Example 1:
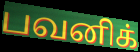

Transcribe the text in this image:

பவனிக்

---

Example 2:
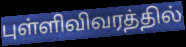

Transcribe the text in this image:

புள்ளிவிவரத்தில்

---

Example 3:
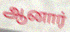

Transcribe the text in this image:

ஆனார்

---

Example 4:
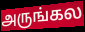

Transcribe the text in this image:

அருங்கல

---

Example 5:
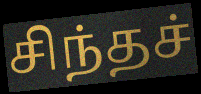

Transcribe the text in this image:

சிந்தச்